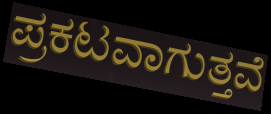
ಪ್ರಕಟವಾಗುತ್ತವೆ